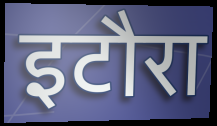
इटौरा